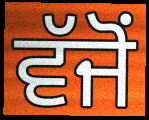
ਵੱਜੋਂ